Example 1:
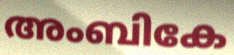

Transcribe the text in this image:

അംബികേ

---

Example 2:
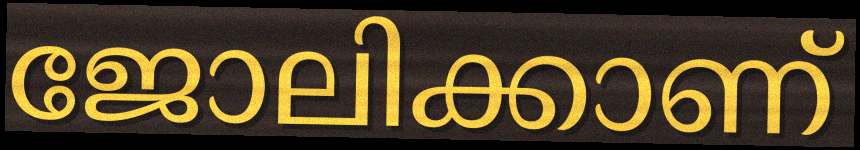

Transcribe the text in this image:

ജോലിക്കാണ്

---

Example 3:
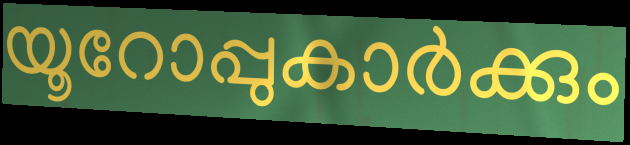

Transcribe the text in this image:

യൂറോപ്പുകാർക്കും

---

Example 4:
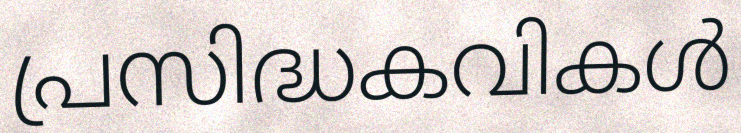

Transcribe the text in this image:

പ്രസിദ്ധകവികൾ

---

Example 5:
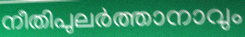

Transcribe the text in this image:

നീതിപുലർത്താനാവും